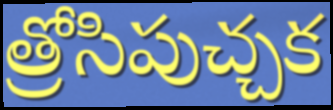
త్రోసిపుచ్చక